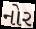
નોર